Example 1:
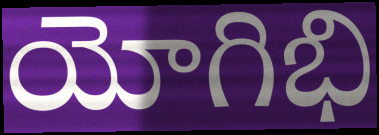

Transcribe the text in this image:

యోగిభి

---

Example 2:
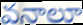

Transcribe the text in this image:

వనాలూ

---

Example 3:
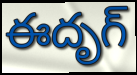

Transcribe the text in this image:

ఈదృగ్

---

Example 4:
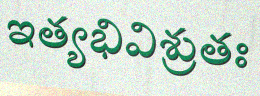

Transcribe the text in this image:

ఇత్యభివిశ్రుతః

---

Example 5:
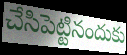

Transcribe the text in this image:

చేసిపెట్టినందుకు